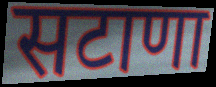
सटाणा